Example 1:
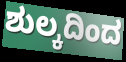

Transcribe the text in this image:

ಶುಲ್ಕದಿಂದ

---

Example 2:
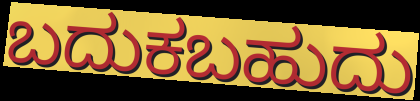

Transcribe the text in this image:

ಬದುಕಬಹುದು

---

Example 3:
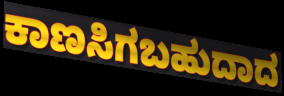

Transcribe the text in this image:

ಕಾಣಸಿಗಬಹುದಾದ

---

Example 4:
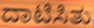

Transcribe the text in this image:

ದಾಟಿಸಿತು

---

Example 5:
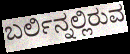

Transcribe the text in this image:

ಬರ್ಲಿನ್ನಲ್ಲಿರುವ